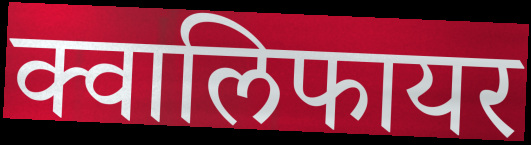
क्वालिफायर